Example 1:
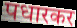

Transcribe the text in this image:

पधारकर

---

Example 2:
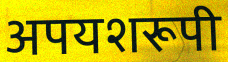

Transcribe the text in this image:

अपयशरूपी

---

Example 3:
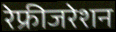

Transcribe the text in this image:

रेफ्रीजरेशन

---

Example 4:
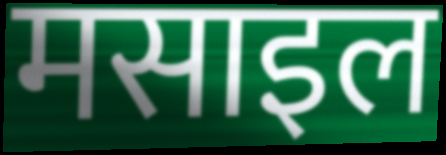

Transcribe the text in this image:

मसाइल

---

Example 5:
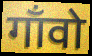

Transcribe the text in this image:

गाँवो